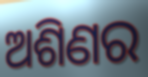
ଅଶିଣର